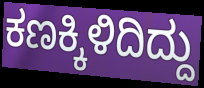
ಕಣಕ್ಕಿಳಿದಿದ್ದು